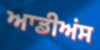
ਆਡੀਅਂਸ